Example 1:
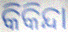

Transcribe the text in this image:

କିକିନ୍ଦା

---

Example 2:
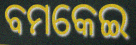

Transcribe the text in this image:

ବମକେଇ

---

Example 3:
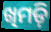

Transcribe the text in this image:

ଖିମଡ଼ି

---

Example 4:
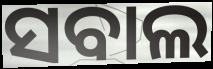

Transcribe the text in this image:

ସବାଲ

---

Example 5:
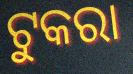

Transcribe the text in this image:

ଟୁକରା